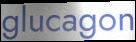
glucagon